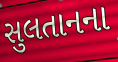
સુલતાનના